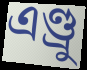
এণ্ড্ৰু